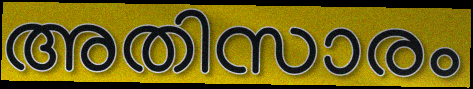
അതിസാരം